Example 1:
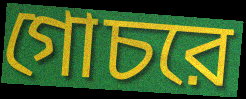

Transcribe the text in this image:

গোচরে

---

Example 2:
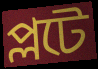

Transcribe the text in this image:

প্লটে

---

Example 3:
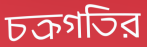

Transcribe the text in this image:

চক্রগতির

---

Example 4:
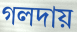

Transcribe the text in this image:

গলদায়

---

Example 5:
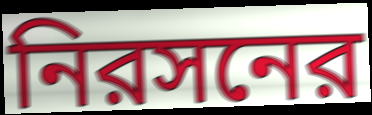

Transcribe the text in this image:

নিরসনের